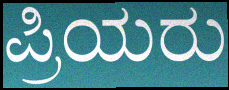
ಪ್ರಿಯರು